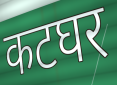
कटघर